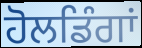
ਹੋਲਡਿੰਗਾਂ